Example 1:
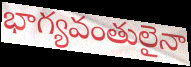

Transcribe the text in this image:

భాగ్యవంతులైనా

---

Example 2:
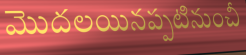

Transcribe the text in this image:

మొదలయినప్పటినుంచీ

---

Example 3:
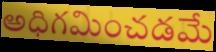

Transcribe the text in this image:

అధిగమించడమే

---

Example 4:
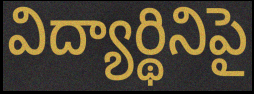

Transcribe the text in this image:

విద్యార్థినిపై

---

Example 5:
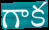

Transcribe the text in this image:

గాక